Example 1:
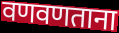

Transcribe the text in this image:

वणवणताना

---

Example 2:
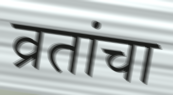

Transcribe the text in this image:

व्रतांचा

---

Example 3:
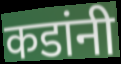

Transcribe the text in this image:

कडांनी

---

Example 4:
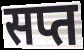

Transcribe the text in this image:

सप्त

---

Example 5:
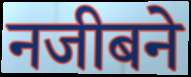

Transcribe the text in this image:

नजीबने